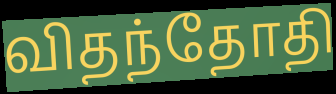
விதந்தோதி